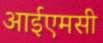
आईएमसी